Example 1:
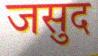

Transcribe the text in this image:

जसुद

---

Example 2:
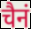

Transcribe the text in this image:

चैनं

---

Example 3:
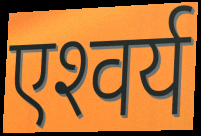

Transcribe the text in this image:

एश्‍वर्य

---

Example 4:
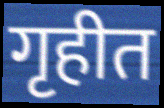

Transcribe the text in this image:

गृहीत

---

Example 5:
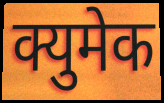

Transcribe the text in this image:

क्युमेक